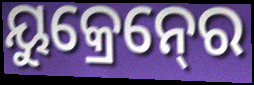
ୟୁକ୍ରେନ୍‍ରେ